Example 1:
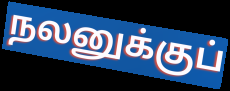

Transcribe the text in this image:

நலனுக்குப்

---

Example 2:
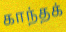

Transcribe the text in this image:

காந்தக்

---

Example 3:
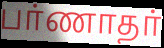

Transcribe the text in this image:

பர்ணாதர்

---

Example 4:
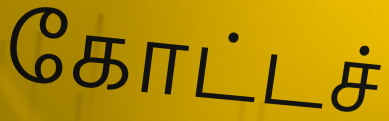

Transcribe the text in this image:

கோட்டச்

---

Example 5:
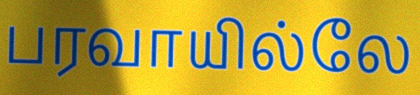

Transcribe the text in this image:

பரவாயில்லே